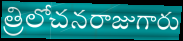
త్రిలోచనరాజుగారు